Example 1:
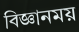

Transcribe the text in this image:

বিজ্ঞানময়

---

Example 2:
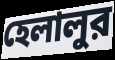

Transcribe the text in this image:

হেলালুর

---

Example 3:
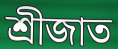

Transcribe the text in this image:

শ্রীজাত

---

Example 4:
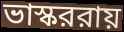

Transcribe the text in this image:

ভাস্কররায়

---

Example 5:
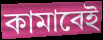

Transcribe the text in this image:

কামাবেই